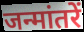
जन्मांतरें